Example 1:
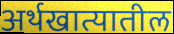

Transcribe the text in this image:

अर्थखात्यातील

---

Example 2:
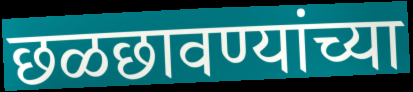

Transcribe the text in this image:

छळछावण्यांच्या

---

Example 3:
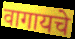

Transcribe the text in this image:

वागायचे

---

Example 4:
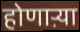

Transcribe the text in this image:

होणाऱ्‍या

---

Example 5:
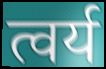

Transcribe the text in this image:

त्वर्य